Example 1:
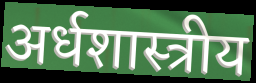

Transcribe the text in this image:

अर्धशास्त्रीय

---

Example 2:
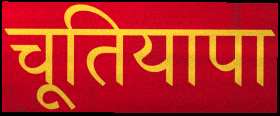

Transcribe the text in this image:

चूतियापा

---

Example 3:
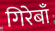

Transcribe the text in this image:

गिरेबाँ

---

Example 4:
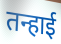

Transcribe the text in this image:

तन्हाई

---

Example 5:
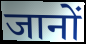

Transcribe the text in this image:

जानों